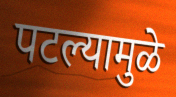
पटल्यामुळे